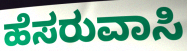
ಹೆಸರುವಾಸಿ